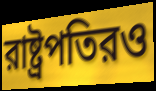
রাষ্ট্রপতিরও